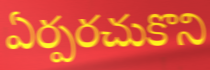
ఏర్పరచుకొని